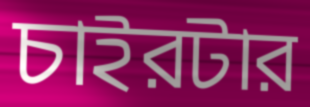
চাইরটার